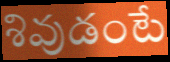
శివుడంటే